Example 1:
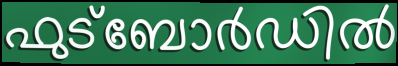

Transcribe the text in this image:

ഫുട്ബോർഡിൽ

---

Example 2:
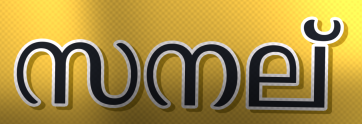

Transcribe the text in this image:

സനല്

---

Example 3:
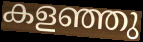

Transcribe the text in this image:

കളഞ്ഞു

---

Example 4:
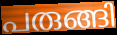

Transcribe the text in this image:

പരുങ്ങി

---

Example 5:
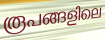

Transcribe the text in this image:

രൂപങ്ങളിലെ